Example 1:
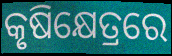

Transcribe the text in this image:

କୃଷିକ୍ଷେତ୍ରରେ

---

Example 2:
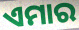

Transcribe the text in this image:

ଏମାର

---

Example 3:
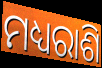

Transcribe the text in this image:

ମଧ୍ୟରାଶି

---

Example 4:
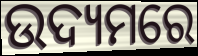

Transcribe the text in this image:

ଉଦ୍ୟମରେ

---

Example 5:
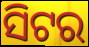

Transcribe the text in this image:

ସିଟର